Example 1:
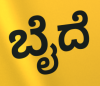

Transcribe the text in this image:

ಬೈದೆ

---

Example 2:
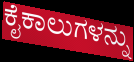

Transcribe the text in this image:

ಕೈಕಾಲುಗಳನ್ನು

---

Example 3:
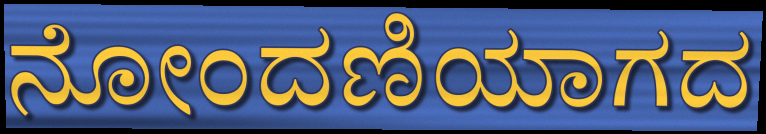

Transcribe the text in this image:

ನೋಂದಣಿಯಾಗದ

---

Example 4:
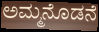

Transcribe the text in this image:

ಅಮ್ಮನೊಡನೆ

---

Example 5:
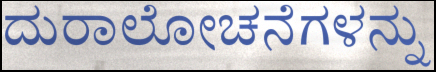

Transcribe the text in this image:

ದುರಾಲೋಚನೆಗಳನ್ನು